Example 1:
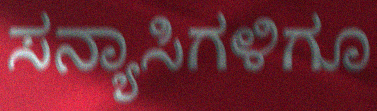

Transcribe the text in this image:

ಸನ್ಯಾಸಿಗಳಿಗೂ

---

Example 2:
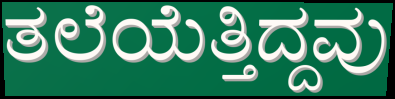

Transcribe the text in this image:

ತಲೆಯೆತ್ತಿದ್ದವು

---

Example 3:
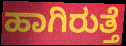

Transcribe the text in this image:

ಹಾಗಿರುತ್ತೆ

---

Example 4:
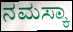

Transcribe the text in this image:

ನಮಸ್ಕಾ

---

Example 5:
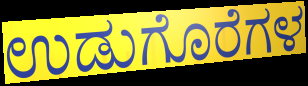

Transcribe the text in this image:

ಉಡುಗೊರೆಗಳ